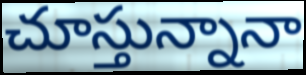
చూస్తున్నానా